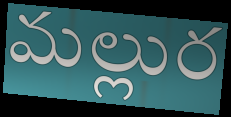
మల్లుర